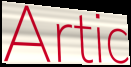
Artic